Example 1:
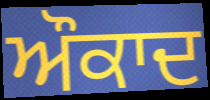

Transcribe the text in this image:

ਔਕਾਦ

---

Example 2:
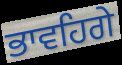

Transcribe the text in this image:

ਭਾਵਹਿਗੇ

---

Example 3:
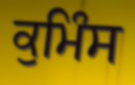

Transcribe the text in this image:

ਕੁਮਿੰਸ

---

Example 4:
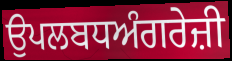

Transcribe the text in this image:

ਉਪਲਬਧਅੰਗਰੇਜ਼ੀ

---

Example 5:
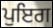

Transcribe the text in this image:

ਪੁਇਗ